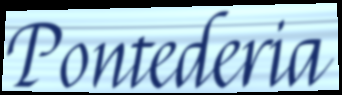
Pontederia